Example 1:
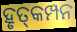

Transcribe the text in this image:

ହୃତ୍‌କମ୍ପନ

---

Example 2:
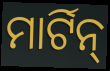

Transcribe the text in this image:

ମାର୍ଟିନ୍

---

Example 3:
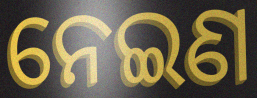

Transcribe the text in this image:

ନେଇଣ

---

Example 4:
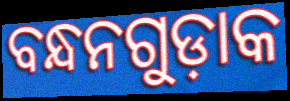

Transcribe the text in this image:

ବନ୍ଧନଗୁଡ଼ାକ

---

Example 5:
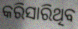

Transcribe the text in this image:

କରିସାରିଥିବ